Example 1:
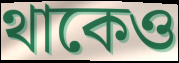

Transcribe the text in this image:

থাকেও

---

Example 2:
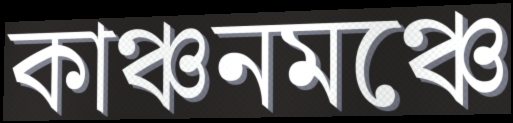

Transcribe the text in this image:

কাঞ্চনমঞ্চে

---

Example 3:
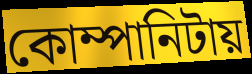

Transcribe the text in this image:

কোম্পানিটায়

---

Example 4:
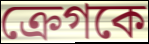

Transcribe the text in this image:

ক্রেগকে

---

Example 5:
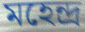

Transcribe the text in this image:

মহেন্দ্র